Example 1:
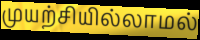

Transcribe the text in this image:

முயற்சியில்லாமல்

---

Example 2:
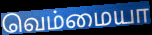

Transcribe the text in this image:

வெம்மையா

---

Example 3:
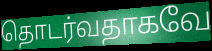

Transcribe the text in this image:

தொடர்வதாகவே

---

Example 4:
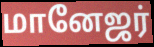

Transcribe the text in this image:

மானேஜர்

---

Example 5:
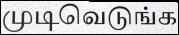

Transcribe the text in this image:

முடிவெடுங்க